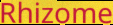
Rhizome